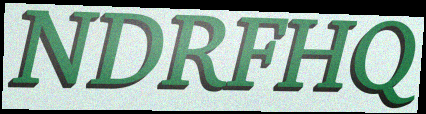
NDRFHQ